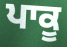
ਪਾਕੂ